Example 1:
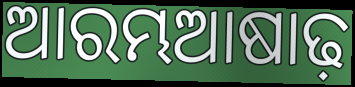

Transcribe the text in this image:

ଆରମ୍ଭଆଷାଢ଼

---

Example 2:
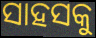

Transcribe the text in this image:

ସାହସକୁ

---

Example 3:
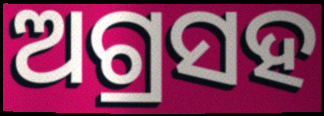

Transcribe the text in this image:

ଅଗ୍ରସହ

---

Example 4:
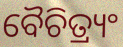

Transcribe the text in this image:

ବୈଚିତ୍ର୍ୟଂ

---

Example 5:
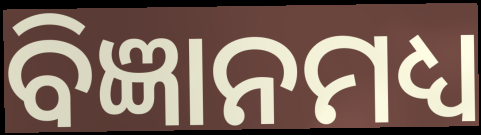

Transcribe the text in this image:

ବିଜ୍ଞାନମଧ୍ୟ